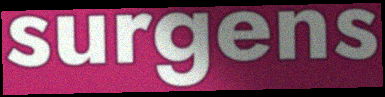
surgens